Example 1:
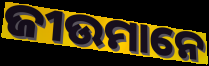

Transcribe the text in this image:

ଜୀଉମାନେ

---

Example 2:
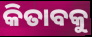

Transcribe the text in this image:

କିତାବକୁ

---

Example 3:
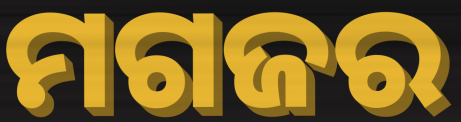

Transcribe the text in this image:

ମଗଜର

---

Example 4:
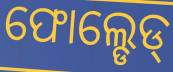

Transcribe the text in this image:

ଫୋଲ୍ଡେଡ୍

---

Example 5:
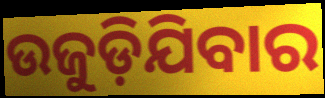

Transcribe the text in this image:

ଉଜୁଡ଼ିଯିବାର